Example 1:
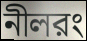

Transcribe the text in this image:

নীলরং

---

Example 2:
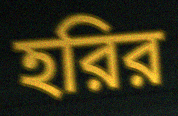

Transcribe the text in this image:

হরির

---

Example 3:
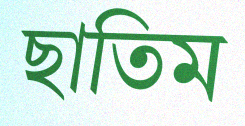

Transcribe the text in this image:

ছাতিম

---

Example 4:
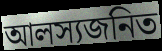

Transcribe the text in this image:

আলস্যজনিত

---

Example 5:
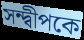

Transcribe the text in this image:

সন্দ্বীপকে